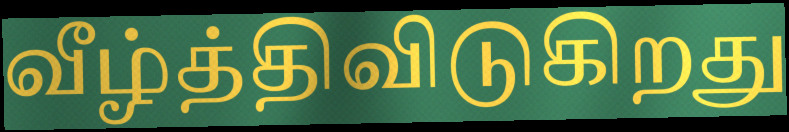
வீழ்த்திவிடுகிறது